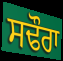
ਸਢੌਰਾ